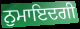
ਨੁਮਾਇਦਗੀ